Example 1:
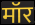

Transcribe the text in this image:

मॉर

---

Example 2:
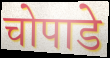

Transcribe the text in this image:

चोपाडे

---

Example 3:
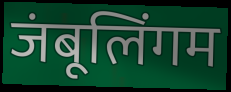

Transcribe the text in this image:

जंबूलिंगम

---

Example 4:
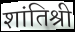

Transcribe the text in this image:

शांतिश्री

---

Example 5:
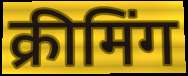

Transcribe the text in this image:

क्रीमिंग